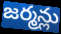
జర్మన్లు